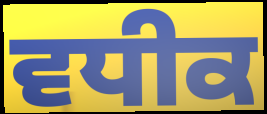
ਵਧੀਕ